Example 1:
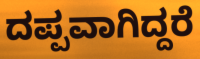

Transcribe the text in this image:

ದಪ್ಪವಾಗಿದ್ದರೆ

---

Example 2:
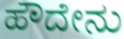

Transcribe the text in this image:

ಹೌದೇನು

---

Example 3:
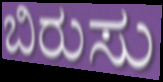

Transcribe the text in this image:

ಬಿರುಸು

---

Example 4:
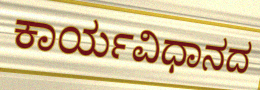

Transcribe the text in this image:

ಕಾರ್ಯವಿಧಾನದ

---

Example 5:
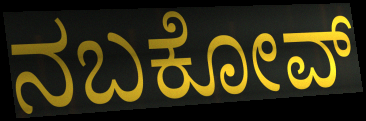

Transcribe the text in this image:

ನಬಕೋವ್